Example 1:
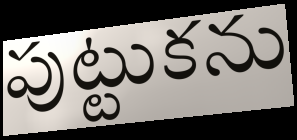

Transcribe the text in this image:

పుట్టుకను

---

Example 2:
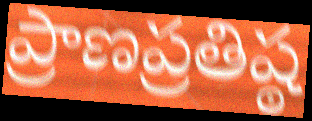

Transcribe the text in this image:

ప్రాణప్రతిష్ఠ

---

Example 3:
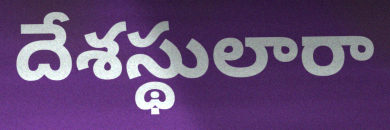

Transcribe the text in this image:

దేశస్థులారా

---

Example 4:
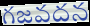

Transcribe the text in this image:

గజవదన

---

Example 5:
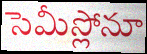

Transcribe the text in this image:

సెమీస్లోనూ